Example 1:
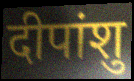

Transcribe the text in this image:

दीपांशु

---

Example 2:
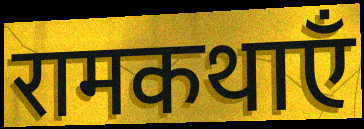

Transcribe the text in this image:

रामकथाएँ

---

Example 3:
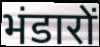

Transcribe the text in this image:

भंडारों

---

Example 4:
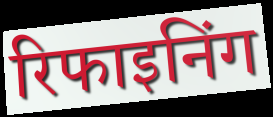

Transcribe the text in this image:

रिफाइनिंग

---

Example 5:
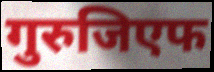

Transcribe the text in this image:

गुरुजिएफ